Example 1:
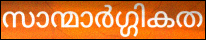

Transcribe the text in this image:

സാന്മാർഗ്ഗികത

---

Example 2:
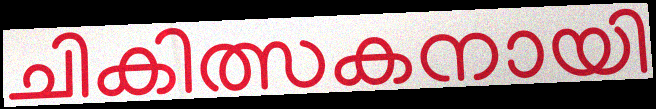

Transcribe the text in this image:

ചികിത്സകനായി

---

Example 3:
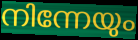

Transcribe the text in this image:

നിന്നേയും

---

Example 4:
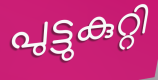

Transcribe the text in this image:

പുട്ടുകുറ്റി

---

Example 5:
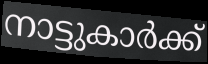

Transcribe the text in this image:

നാട്ടുകാർക്ക്